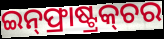
ଇନ୍‌ଫ୍ରାଷ୍ଟ୍ରକ୍‌ଚର